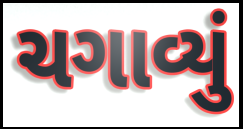
ચગાવ્યું